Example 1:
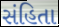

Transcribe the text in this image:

સંહિતા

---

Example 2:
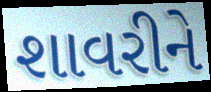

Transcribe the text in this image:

શાવરીને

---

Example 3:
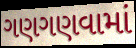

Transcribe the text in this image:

ગણગણવામાં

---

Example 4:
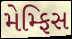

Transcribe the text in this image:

મેમ્ફિસ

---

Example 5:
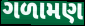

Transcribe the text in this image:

ગળામણ